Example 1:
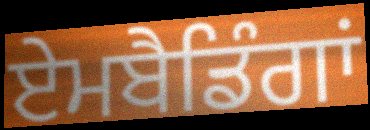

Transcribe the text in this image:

ਏਮਬੈਡਿੰਗਾਂ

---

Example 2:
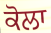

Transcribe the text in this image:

ਕੋਲਾ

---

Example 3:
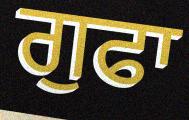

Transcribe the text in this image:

ਗੁਫਾ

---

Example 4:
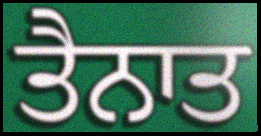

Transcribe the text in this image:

ਤੈਨਾਤ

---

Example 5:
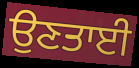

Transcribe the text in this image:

ਉਣਤਾਈ